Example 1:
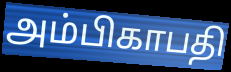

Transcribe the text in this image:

அம்பிகாபதி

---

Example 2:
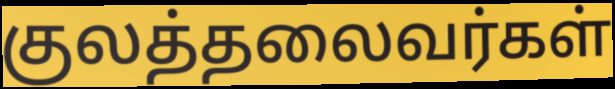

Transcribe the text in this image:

குலத்தலைவர்கள்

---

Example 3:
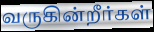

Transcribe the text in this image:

வருகின்றீர்கள்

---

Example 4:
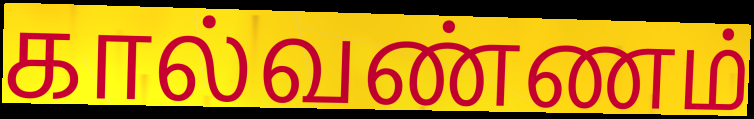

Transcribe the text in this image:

கால்வண்ணம்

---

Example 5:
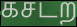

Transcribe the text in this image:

கசடற